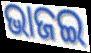
ଭାଜଇ